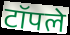
टॉपले